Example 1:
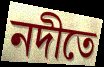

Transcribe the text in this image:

নদীতে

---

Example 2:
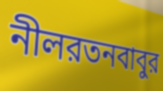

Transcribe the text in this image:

নীলরতনবাবুর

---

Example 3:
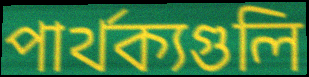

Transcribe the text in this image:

পার্থক্যগুলি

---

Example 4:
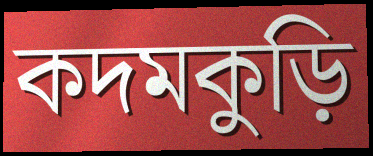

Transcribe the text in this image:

কদমকুড়ি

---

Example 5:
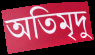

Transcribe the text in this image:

অতিমৃদু